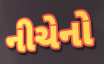
નીચેનો